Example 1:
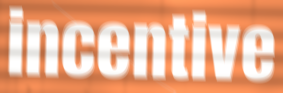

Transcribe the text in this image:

incentive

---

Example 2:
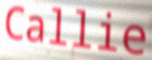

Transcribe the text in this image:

Callie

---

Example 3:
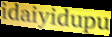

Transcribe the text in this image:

idaiyidupu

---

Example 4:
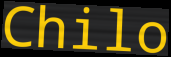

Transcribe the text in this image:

Chilo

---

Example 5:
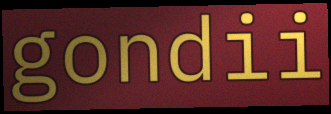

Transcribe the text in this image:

gondii